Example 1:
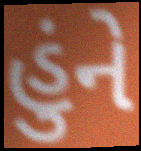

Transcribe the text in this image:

હુંને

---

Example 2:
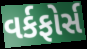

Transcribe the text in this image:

વર્કફોર્સ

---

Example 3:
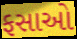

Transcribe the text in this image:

ફસાઓ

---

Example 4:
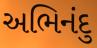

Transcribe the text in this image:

અભિનંદુ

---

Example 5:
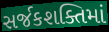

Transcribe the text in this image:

સર્જકશક્તિમાં